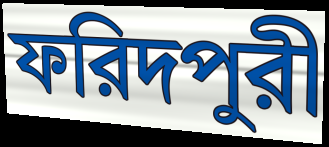
ফরিদপুরী